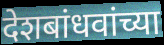
देशबांधवांच्या